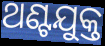
ଥଣ୍ଟଯୁକ୍ତ